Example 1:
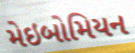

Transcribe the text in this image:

મેઇબોમિયન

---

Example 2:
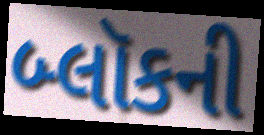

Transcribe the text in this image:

બ્લૉકની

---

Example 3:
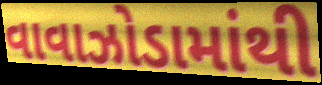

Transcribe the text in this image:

વાવાઝોડામાંથી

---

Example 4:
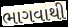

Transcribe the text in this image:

ભાગવાથી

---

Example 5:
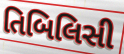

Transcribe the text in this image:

તિબિલિસી